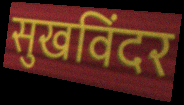
सुखविंदर